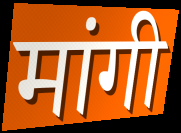
मांगी